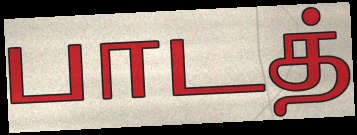
பாடத்